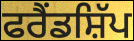
ਫਰੈਂਡਸ਼ਿੱਪ